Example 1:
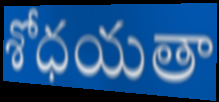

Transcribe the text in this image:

శోధయతా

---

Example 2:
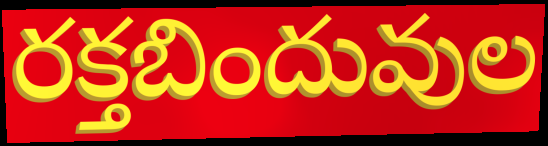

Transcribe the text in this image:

రక్తబిందువుల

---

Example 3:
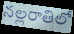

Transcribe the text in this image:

నల్లరాతిలో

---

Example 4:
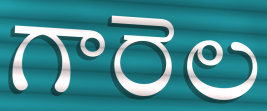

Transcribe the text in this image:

గారెల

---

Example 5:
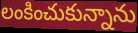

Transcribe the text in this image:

లంకించుకున్నాను